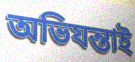
অভিযন্তাই